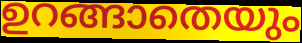
ഉറങ്ങാതെയും